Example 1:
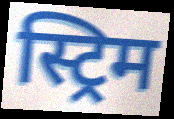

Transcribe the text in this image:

स्ट्रिम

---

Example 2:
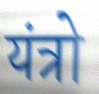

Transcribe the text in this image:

यंत्रो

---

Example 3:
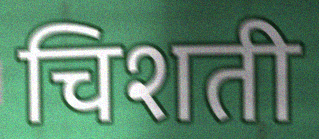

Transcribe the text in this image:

चिशती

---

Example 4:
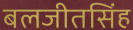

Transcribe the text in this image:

बलजीतसिंह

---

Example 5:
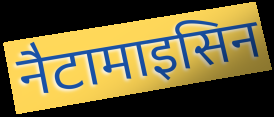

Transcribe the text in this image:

नैटामाइसिन